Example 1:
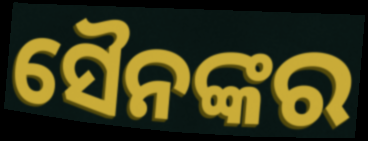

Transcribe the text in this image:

ସୈନଙ୍କର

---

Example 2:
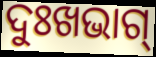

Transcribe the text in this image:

ଦୁଃଖଭାଗ୍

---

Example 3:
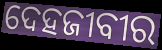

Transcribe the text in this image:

ଦେହଜୀବୀର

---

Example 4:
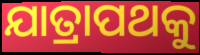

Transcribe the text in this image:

ଯାତ୍ରାପଥକୁ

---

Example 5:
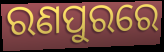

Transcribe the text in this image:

ରଣପୁରରେ